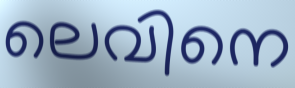
ലെവിനെ